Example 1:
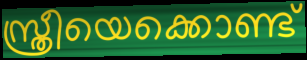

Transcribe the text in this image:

സ്ത്രീയെക്കൊണ്ട്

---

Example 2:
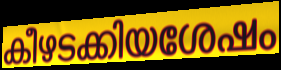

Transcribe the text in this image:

കീഴടക്കിയശേഷം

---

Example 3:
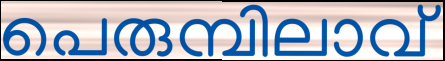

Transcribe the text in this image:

പെരുമ്പിലാവ്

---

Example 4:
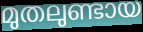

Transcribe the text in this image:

മുതലുണ്ടായ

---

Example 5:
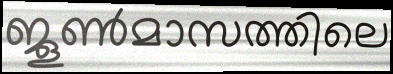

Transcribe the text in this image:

ജൂൺമാസത്തിലെ